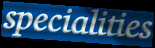
specialities